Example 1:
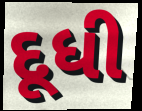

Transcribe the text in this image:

દૂધી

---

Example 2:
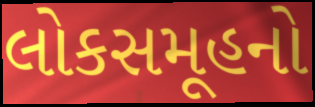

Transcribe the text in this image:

લોકસમૂહનો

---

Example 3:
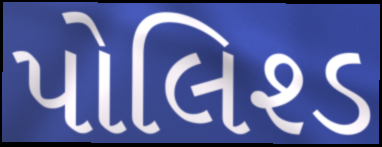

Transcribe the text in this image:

પોલિશ્ડ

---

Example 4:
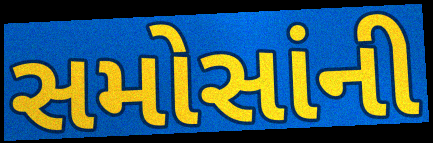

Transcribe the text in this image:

સમોસાંની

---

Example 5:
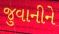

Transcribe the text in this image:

જુવાનીને